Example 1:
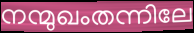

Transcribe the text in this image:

നന്മുഖംതന്നിലേ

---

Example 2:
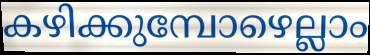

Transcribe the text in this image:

കഴിക്കുമ്പോഴെല്ലാം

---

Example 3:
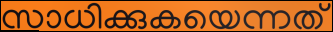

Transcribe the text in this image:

സാധിക്കുകയെന്നത്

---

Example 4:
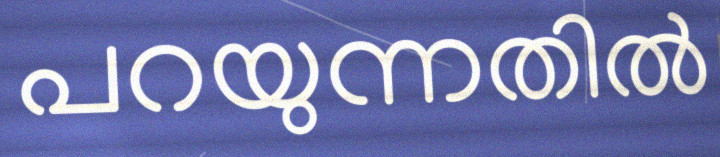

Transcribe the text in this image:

പറയുന്നതിൽ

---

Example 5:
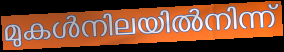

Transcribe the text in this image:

മുകൾനിലയിൽനിന്ന്